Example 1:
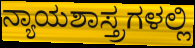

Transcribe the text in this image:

ನ್ಯಾಯಶಾಸ್ತ್ರಗಳಲ್ಲಿ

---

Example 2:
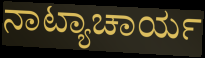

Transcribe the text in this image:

ನಾಟ್ಯಾಚಾರ್ಯ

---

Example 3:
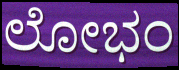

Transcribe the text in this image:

ಲೋಭಂ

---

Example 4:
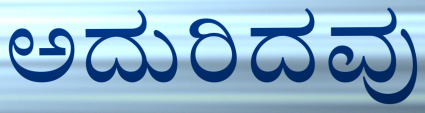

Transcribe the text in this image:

ಅದುರಿದವು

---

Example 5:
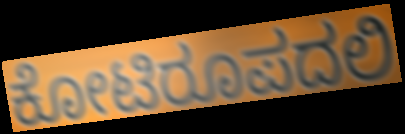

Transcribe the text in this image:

ಕೋಟಿರೂಪದಲಿ